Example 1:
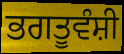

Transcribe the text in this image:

ਭਗਤੂਵੰਸ਼ੀ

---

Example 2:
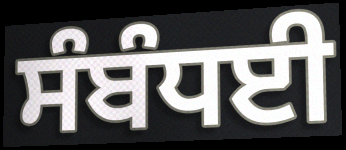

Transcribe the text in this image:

ਸੰਬੰਧਈ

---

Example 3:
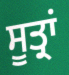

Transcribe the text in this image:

ਸੂਤ੍ਰਾਂ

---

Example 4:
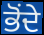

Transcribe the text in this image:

ਭੋਂਦੇ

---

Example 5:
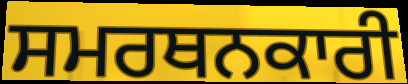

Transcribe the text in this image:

ਸਮਰਥਨਕਾਰੀ